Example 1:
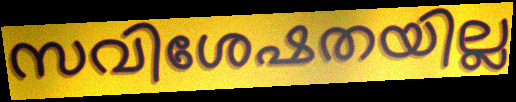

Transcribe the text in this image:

സവിശേഷതയില്ല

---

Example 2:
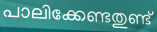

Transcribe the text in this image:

പാലിക്കേണ്ടതുണ്ട്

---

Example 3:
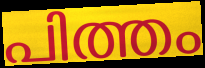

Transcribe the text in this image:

പിത്തം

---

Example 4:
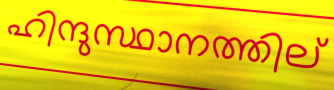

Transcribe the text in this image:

ഹിന്ദുസ്ഥാനത്തില്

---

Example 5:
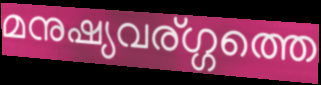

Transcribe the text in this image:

മനുഷ്യവര്ഗ്ഗത്തെ